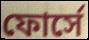
ফোর্সে